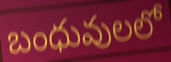
బంధువులలో